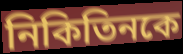
নিকিতিনকে